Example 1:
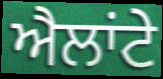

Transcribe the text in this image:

ਐਲਾਂਟੇ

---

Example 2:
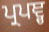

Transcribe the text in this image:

ਪ੍ਰਪਞ੍ਚ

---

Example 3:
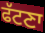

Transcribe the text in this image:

ਫੱਟਣਾ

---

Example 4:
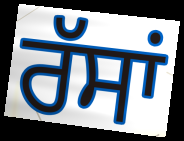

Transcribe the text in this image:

ਰੱਸਾਂ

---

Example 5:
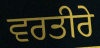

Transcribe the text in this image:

ਵਰਤੀਰੇ